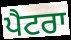
ਪੈਟਰਾ